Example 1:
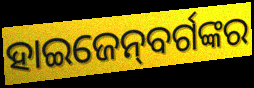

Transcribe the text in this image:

ହାଇଜେନ୍‌ବର୍ଗଙ୍କର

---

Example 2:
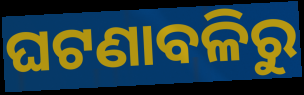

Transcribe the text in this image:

ଘଟଣାବଳିରୁ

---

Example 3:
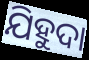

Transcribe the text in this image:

ଯିହୁଦା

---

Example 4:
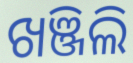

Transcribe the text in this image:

ଖଞ୍ଜିଲି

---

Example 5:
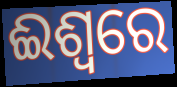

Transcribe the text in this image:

ଈଶ୍ଵରେ